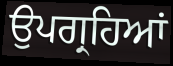
ਉਪਗ੍ਰਹਿਆਂ